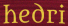
hedri